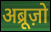
अब्रूज़ो